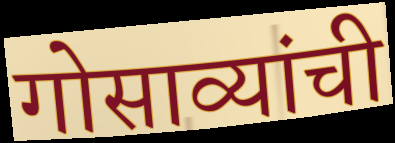
गोसाव्यांची